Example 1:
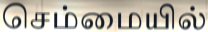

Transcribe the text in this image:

செம்மையில்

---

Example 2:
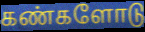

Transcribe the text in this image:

கண்களோடு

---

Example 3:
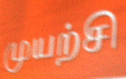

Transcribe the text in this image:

முயற்சி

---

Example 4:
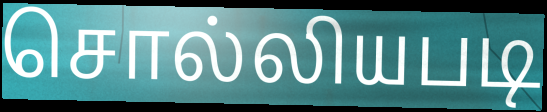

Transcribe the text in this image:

சொல்லியபடி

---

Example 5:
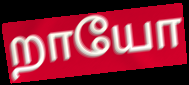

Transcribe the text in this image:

றாயோ